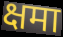
क्षमा